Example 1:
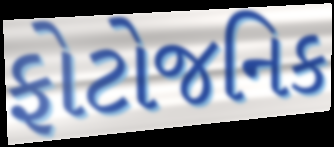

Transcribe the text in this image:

ફોટોજનિક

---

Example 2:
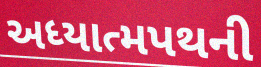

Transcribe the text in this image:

અધ્યાત્મપથની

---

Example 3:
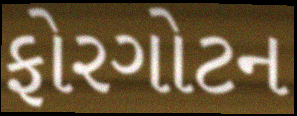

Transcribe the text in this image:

ફોરગોટન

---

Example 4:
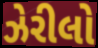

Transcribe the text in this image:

ઝેરીલો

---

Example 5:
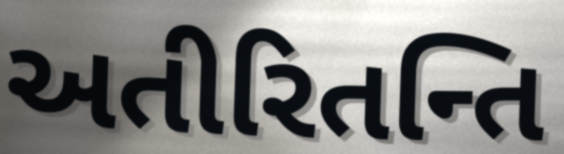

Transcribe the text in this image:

અતીરિતન્તિ